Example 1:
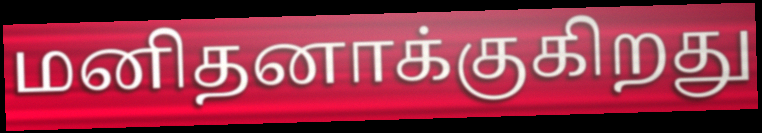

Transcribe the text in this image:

மனிதனாக்குகிறது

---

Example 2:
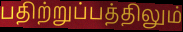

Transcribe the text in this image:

பதிற்றுப்பத்திலும்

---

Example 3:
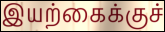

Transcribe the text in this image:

இயற்கைக்குச்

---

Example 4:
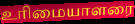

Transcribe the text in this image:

உரிமையாளரை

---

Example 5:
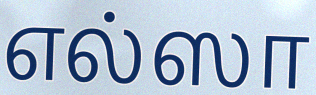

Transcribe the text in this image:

எல்ஸா